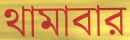
থামাবার